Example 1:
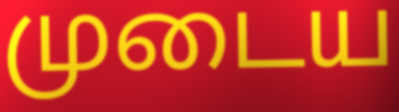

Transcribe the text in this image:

முடைய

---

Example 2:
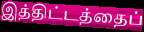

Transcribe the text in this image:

இத்திட்டத்தைப்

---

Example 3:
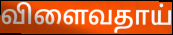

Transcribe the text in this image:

விளைவதாய்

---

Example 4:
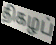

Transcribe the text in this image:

திகழப்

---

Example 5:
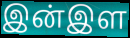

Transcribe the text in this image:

இன்இள